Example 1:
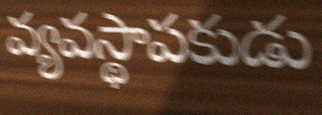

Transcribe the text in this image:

వ్యవస్థాపకుడు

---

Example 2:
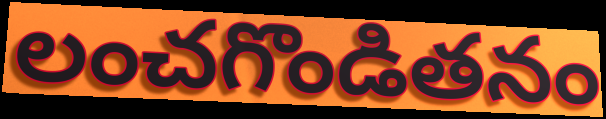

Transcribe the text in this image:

లంచగొండితనం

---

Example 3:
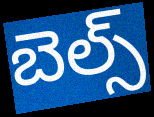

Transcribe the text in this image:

బెల్స్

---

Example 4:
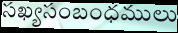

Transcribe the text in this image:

సఖ్యసంబంధములు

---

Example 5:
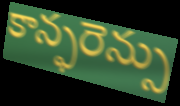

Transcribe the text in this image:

కాన్ఫరెన్సు